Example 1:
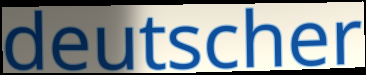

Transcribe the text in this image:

deutscher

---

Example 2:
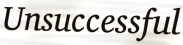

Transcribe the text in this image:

Unsuccessful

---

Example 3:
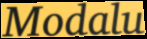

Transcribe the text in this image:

Modalu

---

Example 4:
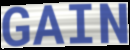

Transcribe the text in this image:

GAIN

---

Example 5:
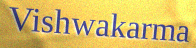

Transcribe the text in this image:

Vishwakarma